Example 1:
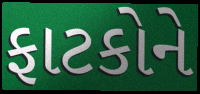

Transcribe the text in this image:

ફાટકોને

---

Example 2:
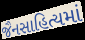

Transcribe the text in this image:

જૈનસાહિત્યમાં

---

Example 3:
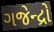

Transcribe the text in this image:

ગજેન્દ્રો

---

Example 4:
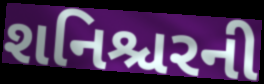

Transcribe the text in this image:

શનિશ્ચરની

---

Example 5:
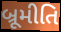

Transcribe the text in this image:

બ્રૂમીતિ